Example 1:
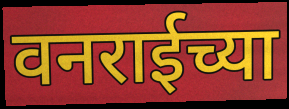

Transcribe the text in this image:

वनराईच्या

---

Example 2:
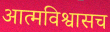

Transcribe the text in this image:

आत्मविश्वासच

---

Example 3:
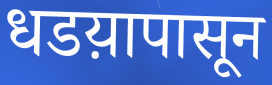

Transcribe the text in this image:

धडय़ापासून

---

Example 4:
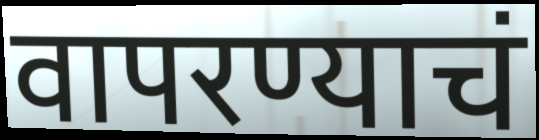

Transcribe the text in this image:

वापरण्याचं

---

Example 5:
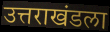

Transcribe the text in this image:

उत्तराखंडला